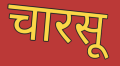
चारसू